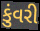
કુંવરી